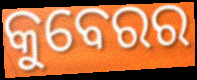
କୁବେରର